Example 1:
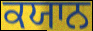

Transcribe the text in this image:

ਕਯਾਨ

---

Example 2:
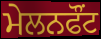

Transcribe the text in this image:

ਮੇਲਨਫੌਂਟ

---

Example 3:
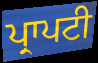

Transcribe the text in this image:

ਪ੍ਰਾਪਟੀ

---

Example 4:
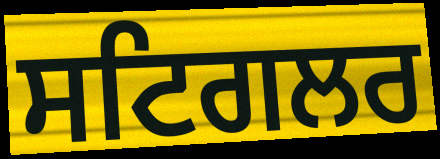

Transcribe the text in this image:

ਸਟਿਗਲਰ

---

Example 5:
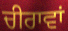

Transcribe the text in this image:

ਚੀਰਾਵਾਂ